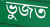
ভুজত